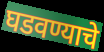
घडवण्याचे